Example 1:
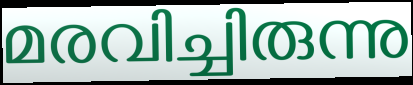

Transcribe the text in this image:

മരവിച്ചിരുന്നു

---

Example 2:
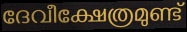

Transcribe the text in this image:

ദേവീക്ഷേത്രമുണ്ട്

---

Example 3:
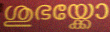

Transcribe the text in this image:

ശുഭയ്ക്കോ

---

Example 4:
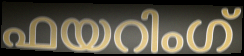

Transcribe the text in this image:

ഫയറിംഗ്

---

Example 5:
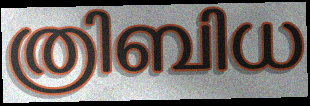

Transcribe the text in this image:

ത്രിബിധ